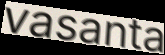
vasanta